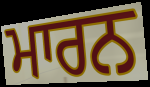
ਮਾਰਨ